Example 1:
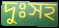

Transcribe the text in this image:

দুঃসহ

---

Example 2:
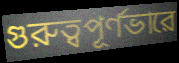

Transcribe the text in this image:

গুৰুত্বপূৰ্ণভাৱে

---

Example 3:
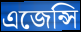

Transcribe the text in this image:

এজেন্সি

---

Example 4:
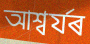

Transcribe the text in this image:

আশ্বৰ্যৰ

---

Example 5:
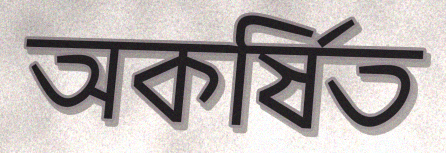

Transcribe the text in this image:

অকৰ্ষিত